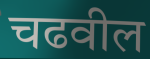
चढवील